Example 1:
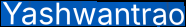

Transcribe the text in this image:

Yashwantrao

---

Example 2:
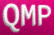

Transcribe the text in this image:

QMP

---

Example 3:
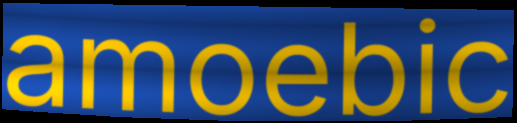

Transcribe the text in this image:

amoebic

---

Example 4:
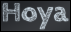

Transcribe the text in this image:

Hoya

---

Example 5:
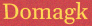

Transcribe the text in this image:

Domagk